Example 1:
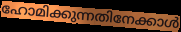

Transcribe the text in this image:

ഹോമിക്കുന്നതിനേക്കാൾ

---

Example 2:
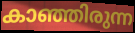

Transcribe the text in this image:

കാഞ്ഞിരുന്ന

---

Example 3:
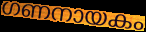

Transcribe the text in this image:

ഗണനായകം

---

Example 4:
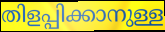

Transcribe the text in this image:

തിളപ്പിക്കാനുള്ള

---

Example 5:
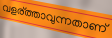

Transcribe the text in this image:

വളര്ത്താവുന്നതാണ്